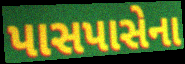
પાસપાસેના